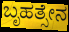
ಬೃಹತ್ಸೇನ